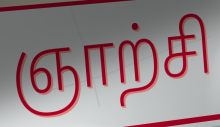
ஞாற்சி